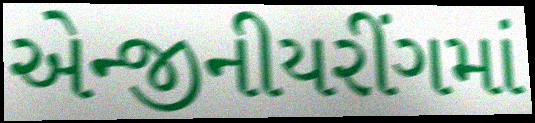
એન્જીનીયરીંગમાં